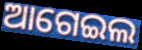
ଆଗେଇଲ